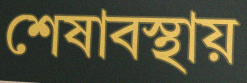
শেষাবস্থায়